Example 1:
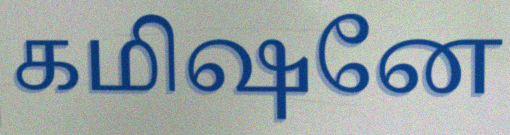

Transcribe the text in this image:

கமிஷனே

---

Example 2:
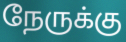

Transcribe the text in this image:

நேருக்கு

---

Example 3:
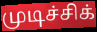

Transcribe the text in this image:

முடிச்சிக்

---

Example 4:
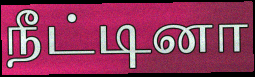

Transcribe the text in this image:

நீட்டினா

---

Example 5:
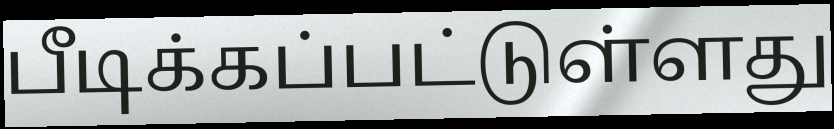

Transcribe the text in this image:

பீடிக்கப்பட்டுள்ளது